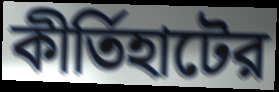
কীর্তিহাটের